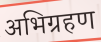
अभिग्रहण